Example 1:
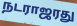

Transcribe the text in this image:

நடராஜரது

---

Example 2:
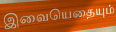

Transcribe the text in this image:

இவையெதையும்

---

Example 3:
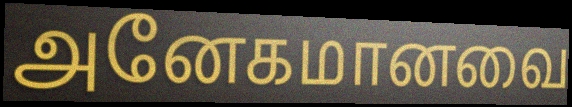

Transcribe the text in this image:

அனேகமானவை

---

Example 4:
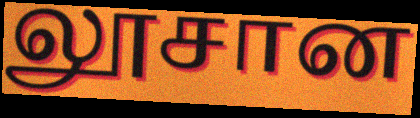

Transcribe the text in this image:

லூசான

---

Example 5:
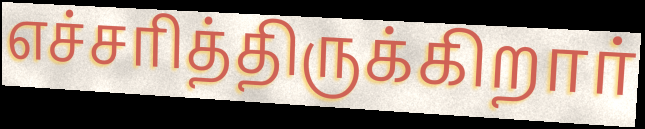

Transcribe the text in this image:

எச்சரித்திருக்கிறார்